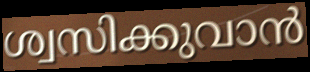
ശ്വസിക്കുവാൻ